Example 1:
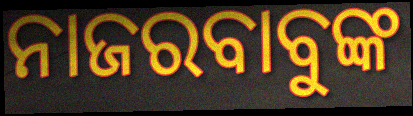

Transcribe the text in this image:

ନାଜରବାବୁଙ୍କ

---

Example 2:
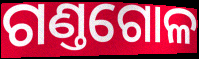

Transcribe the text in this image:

ଗଣ୍ତଗୋଳ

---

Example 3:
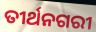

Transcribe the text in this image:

ତୀର୍ଥନଗରୀ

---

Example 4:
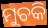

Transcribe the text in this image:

ମୁଚକି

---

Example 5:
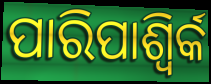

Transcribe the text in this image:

ପାରିପାଶ୍ୱିର୍କ